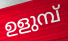
ഉളുമ്പ്